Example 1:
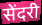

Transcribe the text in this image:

सेंदरी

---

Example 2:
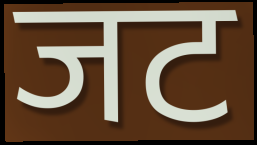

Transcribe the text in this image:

जट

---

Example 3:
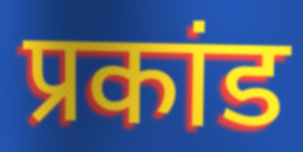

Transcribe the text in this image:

प्रकांड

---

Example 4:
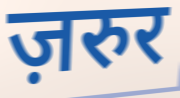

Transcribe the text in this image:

ज़रुर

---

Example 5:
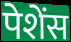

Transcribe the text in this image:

पेशेंस